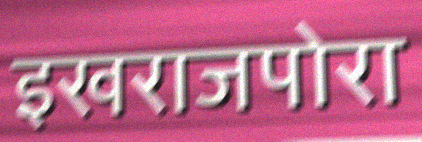
इखराजपोरा